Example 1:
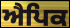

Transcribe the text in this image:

ਐਪਿਕ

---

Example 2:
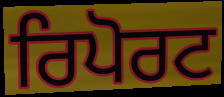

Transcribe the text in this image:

ਰਿਪੋਰਟ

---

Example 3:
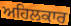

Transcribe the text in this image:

ਅਹਿਲਕਾਰ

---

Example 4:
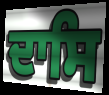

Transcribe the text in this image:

ਦਾਸਿ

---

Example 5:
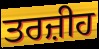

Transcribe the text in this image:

ਤਰਜ਼ੀਹ